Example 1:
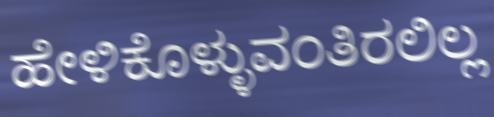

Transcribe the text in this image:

ಹೇಳಿಕೊಳ್ಳುವಂತಿರಲಿಲ್ಲ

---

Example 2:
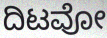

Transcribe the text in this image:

ದಿಟವೋ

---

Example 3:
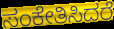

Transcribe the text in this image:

ಸಂಕೇತಿಸಿದರೆ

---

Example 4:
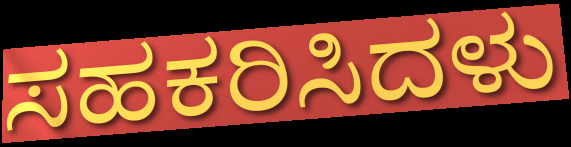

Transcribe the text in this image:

ಸಹಕರಿಸಿದಳು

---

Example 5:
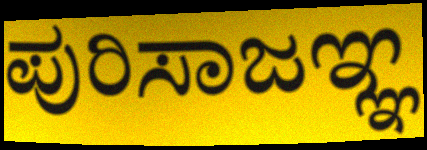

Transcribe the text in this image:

ಪುರಿಸಾಜಞ್ಞ